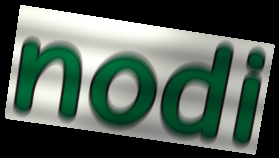
nodi